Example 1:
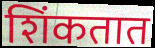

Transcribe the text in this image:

शिंकतात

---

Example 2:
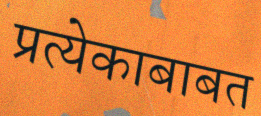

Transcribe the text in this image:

प्रत्येकाबाबत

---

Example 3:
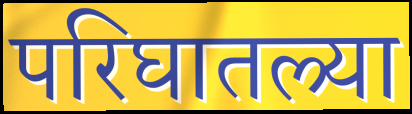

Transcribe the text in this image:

परिघातल्या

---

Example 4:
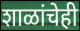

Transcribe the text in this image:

शाळांचेही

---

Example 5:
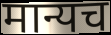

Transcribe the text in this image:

मान्यच